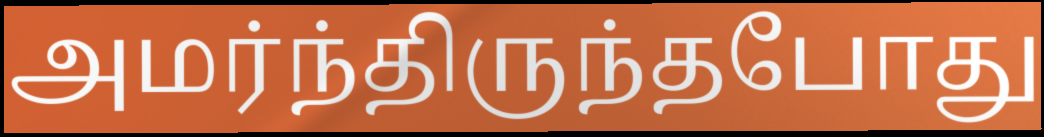
அமர்ந்திருந்தபோது